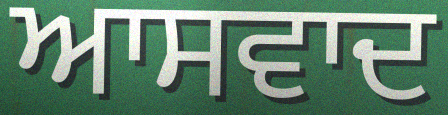
ਆਸਵਾਦ